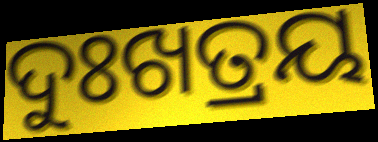
ଦୁଃଖତ୍ରୟ